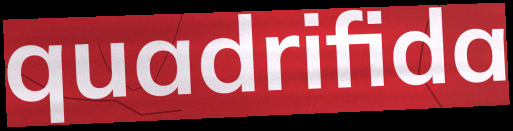
quadrifida